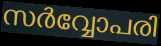
സർവ്വോപരി